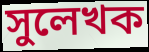
সুলেখক